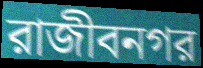
রাজীবনগর